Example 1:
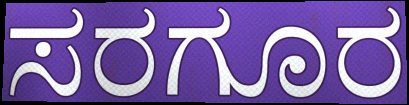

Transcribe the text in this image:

ಸರಗೂರ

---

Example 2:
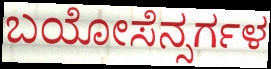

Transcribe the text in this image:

ಬಯೋಸೆನ್ಸರ್ಗಳ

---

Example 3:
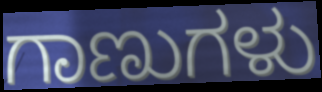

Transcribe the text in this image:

ಗಾಣುಗಳು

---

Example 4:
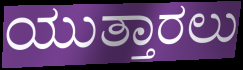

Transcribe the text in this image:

ಯುತ್ತಾರಲು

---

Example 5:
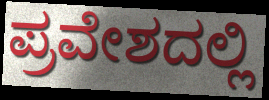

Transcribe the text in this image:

ಪ್ರವೇಶದಲ್ಲಿ